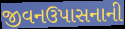
જીવનઉપાસનાની